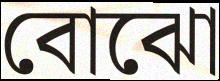
বোঝো